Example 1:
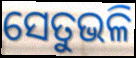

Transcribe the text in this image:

ସେତୁଭଳି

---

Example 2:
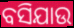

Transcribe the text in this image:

ବସିଯାଉ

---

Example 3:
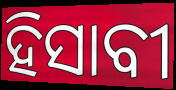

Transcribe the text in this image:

ହିସାବୀ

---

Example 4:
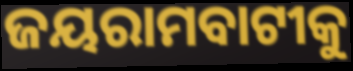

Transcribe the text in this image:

ଜୟରାମବାଟୀକୁ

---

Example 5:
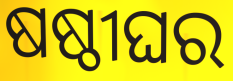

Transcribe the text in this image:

ଷଷ୍ଠୀଘର